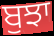
ਬੁਝਾ